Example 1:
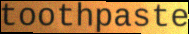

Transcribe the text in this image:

toothpaste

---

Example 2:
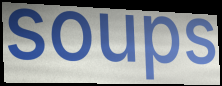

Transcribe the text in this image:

soups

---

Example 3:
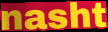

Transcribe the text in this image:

nasht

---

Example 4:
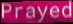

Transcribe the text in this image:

Prayed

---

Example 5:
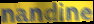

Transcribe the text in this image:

nandine